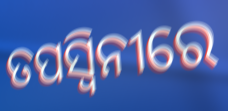
ତପସ୍ଵିନୀରେ